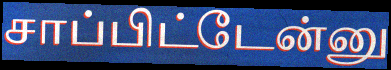
சாப்பிட்டேன்னு